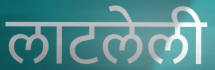
लाटलेली